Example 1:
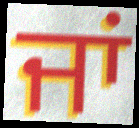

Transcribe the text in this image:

ਜਾਂ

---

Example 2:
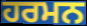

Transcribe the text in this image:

ਹਰਮਨ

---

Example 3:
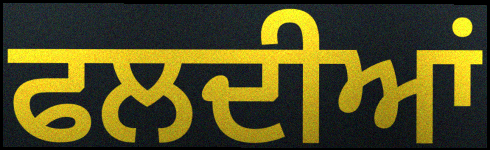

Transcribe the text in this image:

ਫਲਦੀਆਂ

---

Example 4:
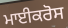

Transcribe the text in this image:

ਮਾਈਕਰੋਸ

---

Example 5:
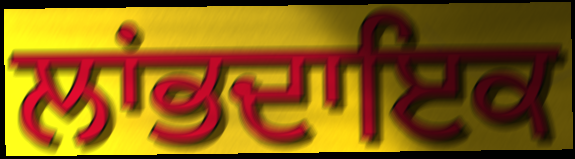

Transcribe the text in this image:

ਲਾਂਭਦਾਇਕ